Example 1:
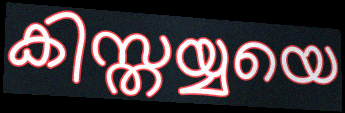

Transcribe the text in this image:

കിസ്തയ്യയെ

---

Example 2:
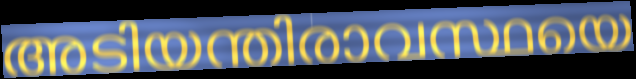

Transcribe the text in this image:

അടിയന്തിരാവസ്ഥയെ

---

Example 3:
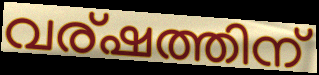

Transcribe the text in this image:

വര്ഷത്തിന്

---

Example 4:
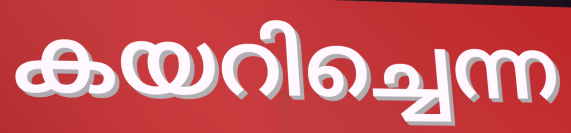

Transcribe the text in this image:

കയറിച്ചെന്ന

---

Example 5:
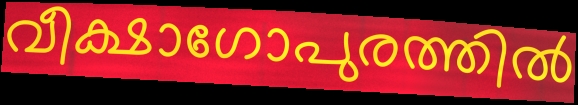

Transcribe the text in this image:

വീക്ഷാഗോപുരത്തിൽ